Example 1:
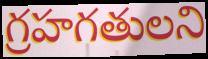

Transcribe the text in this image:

గ్రహగతులని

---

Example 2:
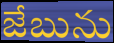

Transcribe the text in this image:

జేబును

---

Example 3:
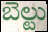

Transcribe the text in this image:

బెల్టు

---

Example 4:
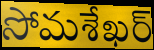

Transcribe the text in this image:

సోమశేఖర్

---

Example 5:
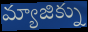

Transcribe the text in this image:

మ్యాజిక్ను